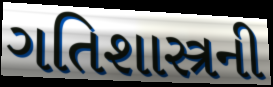
ગતિશાસ્ત્રની